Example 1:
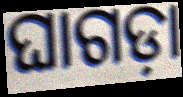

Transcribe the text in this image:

ଘାଗଡ଼ା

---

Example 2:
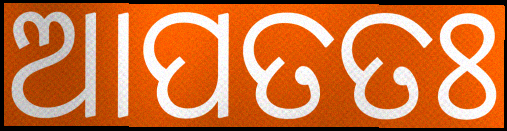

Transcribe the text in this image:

ଆପତତଃ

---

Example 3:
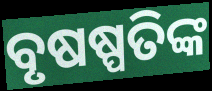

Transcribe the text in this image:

ବୃଷଷ୍ପତିଙ୍କ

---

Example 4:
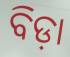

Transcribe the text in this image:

ବିଡ଼ା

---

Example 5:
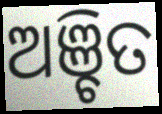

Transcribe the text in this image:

ଅଞ୍ଚିତ